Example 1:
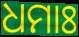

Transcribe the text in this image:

ଧମାଃ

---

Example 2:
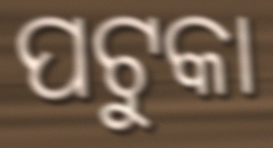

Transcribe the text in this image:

ପଟୁକା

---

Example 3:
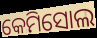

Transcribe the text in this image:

କେମିସୋଲ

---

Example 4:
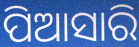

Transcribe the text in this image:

ପିଆସାରି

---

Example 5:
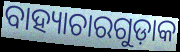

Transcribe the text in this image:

ବାହ୍ୟାଚାରଗୁଡ଼ାକ